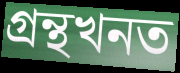
গ্ৰন্থখনত